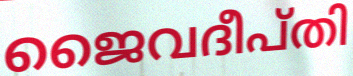
ജൈവദീപ്തി